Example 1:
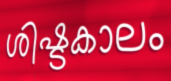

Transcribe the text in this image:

ശിഷ്ടകാലം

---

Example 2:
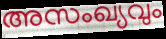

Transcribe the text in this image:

അസംഖ്യവും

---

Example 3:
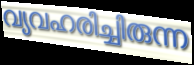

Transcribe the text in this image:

വ്യവഹരിച്ചിരുന്ന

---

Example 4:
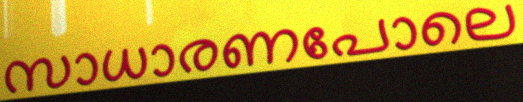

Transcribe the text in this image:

സാധാരണപോലെ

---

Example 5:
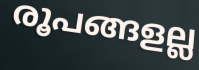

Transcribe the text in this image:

രൂപങ്ങളല്ല